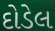
દોડેલ